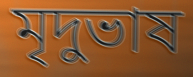
মৃদুভাষ